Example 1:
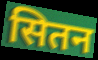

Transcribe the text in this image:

सितन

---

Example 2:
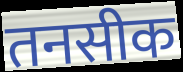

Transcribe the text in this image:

तनसीक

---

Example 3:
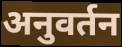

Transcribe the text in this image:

अनुवर्तन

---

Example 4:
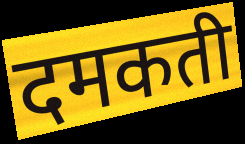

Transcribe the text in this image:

दमकती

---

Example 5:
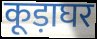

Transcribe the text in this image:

कूड़ाघर